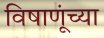
विषाणूंच्या